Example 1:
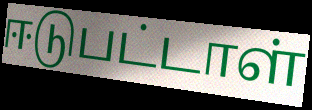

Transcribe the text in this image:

ஈடுபட்டாள்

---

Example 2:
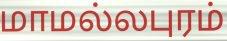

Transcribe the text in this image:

மாமல்லபுரம்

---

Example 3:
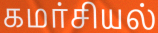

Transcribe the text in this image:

கமர்சியல்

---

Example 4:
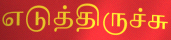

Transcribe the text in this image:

எடுத்திருச்சு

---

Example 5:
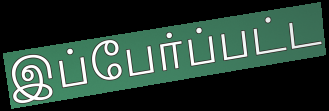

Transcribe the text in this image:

இப்பேர்ப்பட்ட